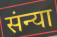
संन्या